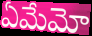
ఏమేమో